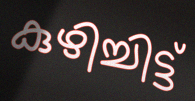
കുഴിച്ചിട്ട്